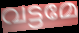
വട്ടമേ